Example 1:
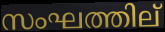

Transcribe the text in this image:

സംഘത്തില്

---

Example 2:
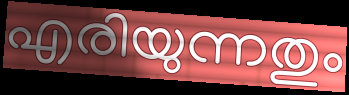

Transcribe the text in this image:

എരിയുന്നതും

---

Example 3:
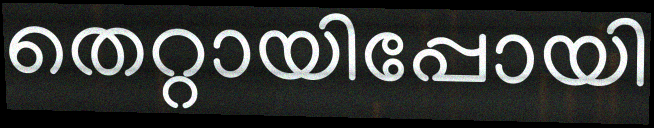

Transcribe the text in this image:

തെറ്റായിപ്പോയി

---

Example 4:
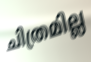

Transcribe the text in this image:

ചിത്രമില്ല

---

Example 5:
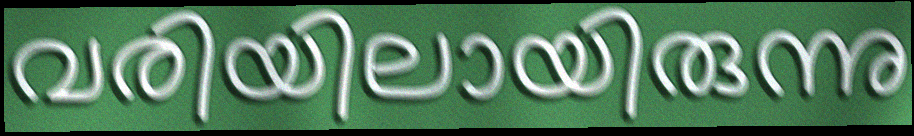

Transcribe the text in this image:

വരിയിലായിരുന്നു